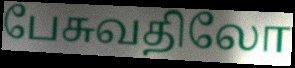
பேசுவதிலோ